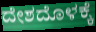
ದೇಶದೊಳಕ್ಕೆ